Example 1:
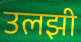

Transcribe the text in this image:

उलझी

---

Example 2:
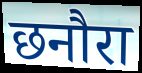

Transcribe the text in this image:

छनौरा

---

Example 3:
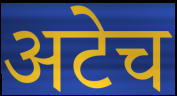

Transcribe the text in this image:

अटेच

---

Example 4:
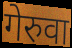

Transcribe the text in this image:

गेरुवा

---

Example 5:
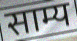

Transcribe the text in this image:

साम्‍य